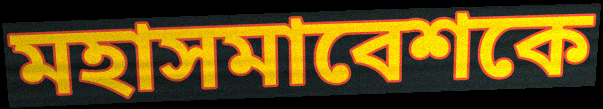
মহাসমাবেশকে